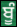
ਬੂੰ